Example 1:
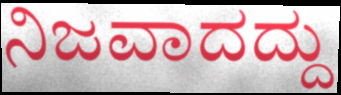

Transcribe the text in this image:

ನಿಜವಾದದ್ದು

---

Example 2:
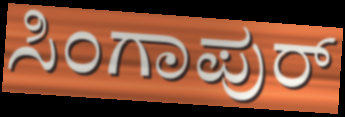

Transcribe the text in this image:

ಸಿಂಗಾಪುರ್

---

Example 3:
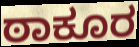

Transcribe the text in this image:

ಠಾಕೂರ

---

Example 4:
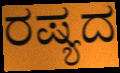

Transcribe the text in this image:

ರಷ್ಯದ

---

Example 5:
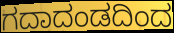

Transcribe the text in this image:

ಗದಾದಂಡದಿಂದ